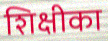
शिक्षीका